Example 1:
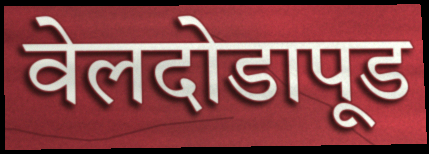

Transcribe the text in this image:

वेलदोडापूड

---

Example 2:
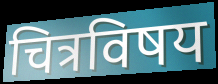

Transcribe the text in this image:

चित्रविषय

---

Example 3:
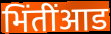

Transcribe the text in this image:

भिंतींआड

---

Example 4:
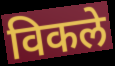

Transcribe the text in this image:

विकले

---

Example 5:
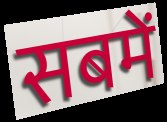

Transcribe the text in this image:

सबमें